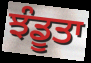
ਝੰਡੂਤਾ